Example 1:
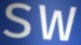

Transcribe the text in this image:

sw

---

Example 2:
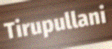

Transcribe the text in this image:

Tirupullani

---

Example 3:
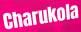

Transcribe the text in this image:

Charukola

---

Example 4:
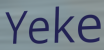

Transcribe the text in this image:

Yeke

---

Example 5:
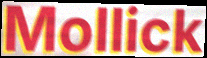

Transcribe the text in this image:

Mollick